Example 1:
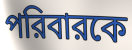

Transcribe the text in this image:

পরিবারকে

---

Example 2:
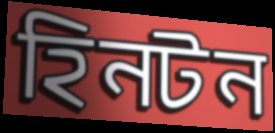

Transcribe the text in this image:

হিনটন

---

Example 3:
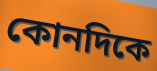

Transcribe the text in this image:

কোনদিকে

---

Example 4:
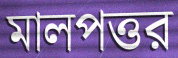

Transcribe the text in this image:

মালপত্তর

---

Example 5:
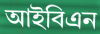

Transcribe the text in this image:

আইবিএন